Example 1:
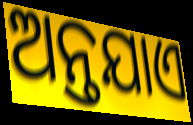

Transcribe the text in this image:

ଅନ୍ତଯାଏ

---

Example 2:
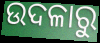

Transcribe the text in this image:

ଉଦଳାରୁ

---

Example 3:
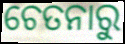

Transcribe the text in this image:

ଚେତନାରୁ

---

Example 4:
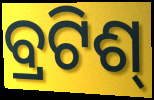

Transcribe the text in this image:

ବ୍ରଟିଶ୍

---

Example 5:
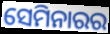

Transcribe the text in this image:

ସେମିନାରର